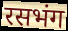
रसभंग